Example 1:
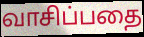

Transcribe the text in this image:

வாசிப்பதை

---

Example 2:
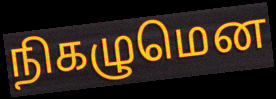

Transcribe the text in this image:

நிகழுமென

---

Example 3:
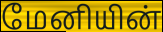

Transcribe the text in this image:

மேனியின்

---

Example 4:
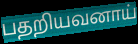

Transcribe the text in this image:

பதறியவனாய்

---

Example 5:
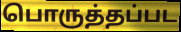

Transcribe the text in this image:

பொருத்தப்பட